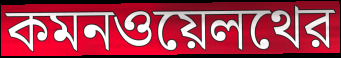
কমনওয়েলথের